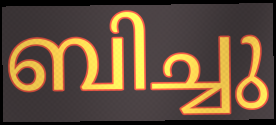
ബിച്ചു